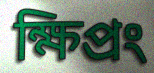
ক্ষিপ্রং